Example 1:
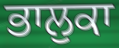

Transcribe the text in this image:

ਭਾਲੁਕਾ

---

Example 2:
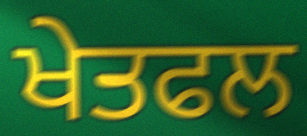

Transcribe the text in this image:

ਖੇਤਫਲ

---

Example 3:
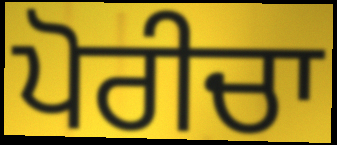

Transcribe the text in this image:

ਪੋਰੀਚਾ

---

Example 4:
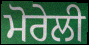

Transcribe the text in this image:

ਮੋਰੇਲੀ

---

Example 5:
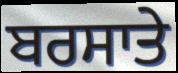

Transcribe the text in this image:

ਬਰਸਾਤੇ